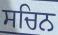
ਸਚਿਨ